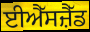
ਈਐੱਸਜ਼ੈੱਡ